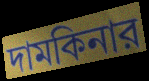
দামকিনার